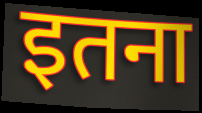
इतना